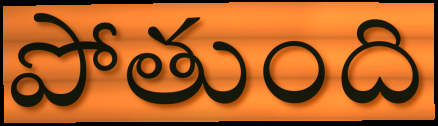
పోతుంది